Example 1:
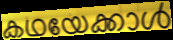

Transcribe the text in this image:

കഥയേക്കാൾ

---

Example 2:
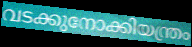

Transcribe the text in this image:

വടക്കുനോക്കിയന്ത്രം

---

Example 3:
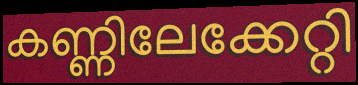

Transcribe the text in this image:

കണ്ണിലേക്കേറ്റി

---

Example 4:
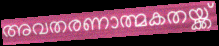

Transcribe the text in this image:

അവതരണാത്മകതയ്ക്ക്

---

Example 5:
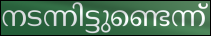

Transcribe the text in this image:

നടന്നിട്ടുണ്ടെന്ന്